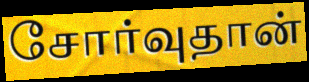
சோர்வுதான்